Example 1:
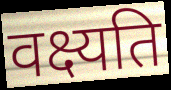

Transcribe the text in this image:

वक्ष्यति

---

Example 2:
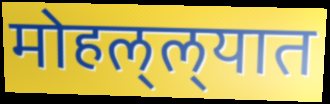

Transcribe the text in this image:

मोहल्ल्यात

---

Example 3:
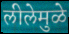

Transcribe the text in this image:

लीलेमुळे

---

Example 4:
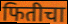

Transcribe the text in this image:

फितीचा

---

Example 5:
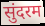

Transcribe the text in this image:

सुंदरम